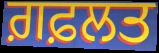
ਗ਼ਫ਼ਲਤ